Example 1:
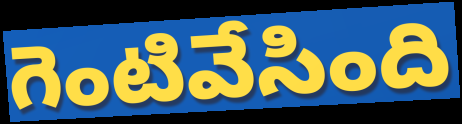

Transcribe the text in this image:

గెంటివేసింది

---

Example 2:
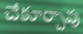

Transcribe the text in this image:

చేకూర్చావు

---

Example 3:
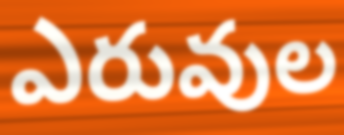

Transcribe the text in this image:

ఎరువుల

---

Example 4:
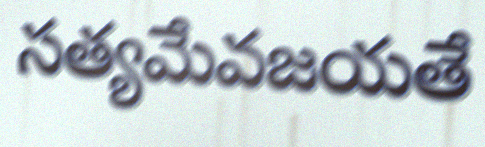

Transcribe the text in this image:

సత్యమేవజయతే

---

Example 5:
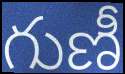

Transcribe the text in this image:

గుణీ